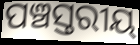
ପଞ୍ଚସ୍ତରୀୟ